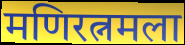
मणिरत्नमला